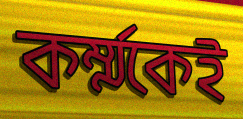
কর্ম্মকেই